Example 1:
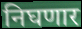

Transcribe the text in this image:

निघणार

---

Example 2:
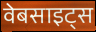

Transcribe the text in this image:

वेबसाइट्स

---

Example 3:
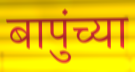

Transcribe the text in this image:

बापुंच्या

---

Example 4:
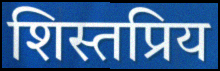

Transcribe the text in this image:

शिस्तप्रिय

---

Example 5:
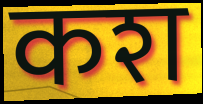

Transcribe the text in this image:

कश